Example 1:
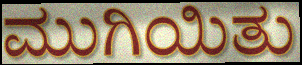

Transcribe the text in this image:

ಮುಗಿಯಿತು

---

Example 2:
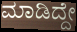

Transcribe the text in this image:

ಮಾಡಿದ್ದೇ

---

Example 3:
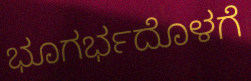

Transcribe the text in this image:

ಭೂಗರ್ಭದೊಳಗೆ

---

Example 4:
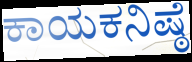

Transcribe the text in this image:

ಕಾಯಕನಿಷ್ಠೆ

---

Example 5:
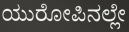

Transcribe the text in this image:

ಯುರೋಪಿನಲ್ಲೇ